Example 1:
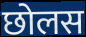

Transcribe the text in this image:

छोलस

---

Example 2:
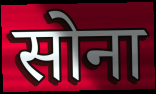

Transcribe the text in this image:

सोना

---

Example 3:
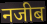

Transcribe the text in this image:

नजीब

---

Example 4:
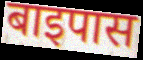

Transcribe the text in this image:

बाइपास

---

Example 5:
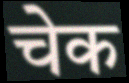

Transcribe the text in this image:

चेक